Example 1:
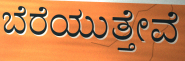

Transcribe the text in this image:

ಬೆರೆಯುತ್ತೇವೆ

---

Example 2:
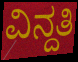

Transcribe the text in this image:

ವಿನ್ದತಿ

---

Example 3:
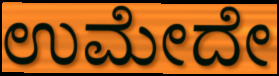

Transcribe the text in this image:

ಉಮೇದೇ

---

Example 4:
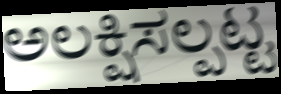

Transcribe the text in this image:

ಅಲಕ್ಷಿಸಲ್ಪಟ್ಟ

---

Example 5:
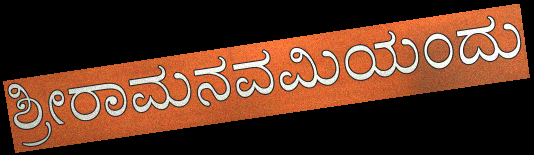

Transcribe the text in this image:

ಶ್ರೀರಾಮನವಮಿಯಂದು